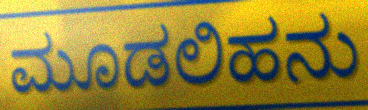
ಮೂಡಲಿಹನು